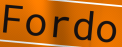
Fordo